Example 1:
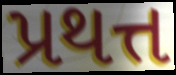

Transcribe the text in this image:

પ્રથત્ત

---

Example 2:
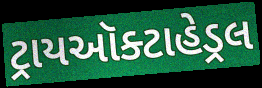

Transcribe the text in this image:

ટ્રાયઑક્ટાહેડ્રલ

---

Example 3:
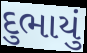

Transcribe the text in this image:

દુભાયું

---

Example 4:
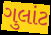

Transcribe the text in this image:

ગુલાંટ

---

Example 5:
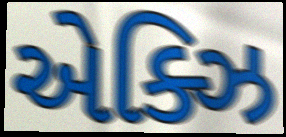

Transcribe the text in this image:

એક્ઝિ